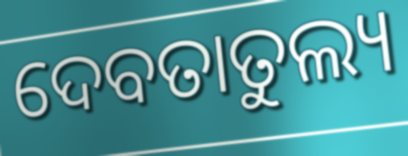
ଦେବତାତୁଲ୍ୟ